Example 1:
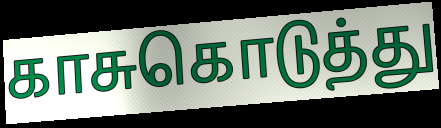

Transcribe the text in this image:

காசுகொடுத்து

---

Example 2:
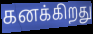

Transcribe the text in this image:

கனக்கிறது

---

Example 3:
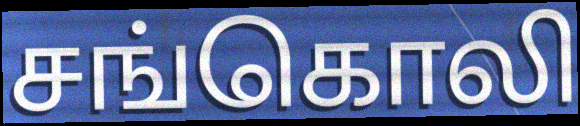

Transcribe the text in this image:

சங்கொலி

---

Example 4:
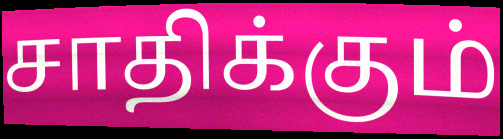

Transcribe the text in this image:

சாதிக்கும்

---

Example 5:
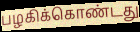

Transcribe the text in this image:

பழகிக்கொண்டது